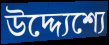
উদ্দ্যেশ্যে